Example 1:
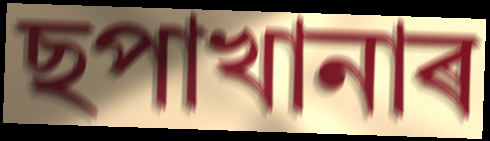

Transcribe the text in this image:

ছপাখানাৰ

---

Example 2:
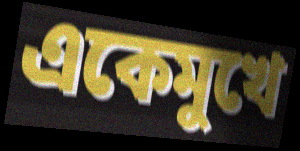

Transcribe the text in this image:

একেমুখে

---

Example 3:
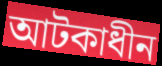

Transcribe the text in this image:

আটকাধীন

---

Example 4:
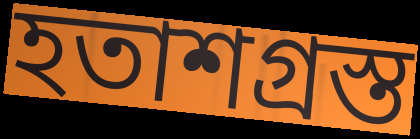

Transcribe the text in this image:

হতাশগ্ৰস্ত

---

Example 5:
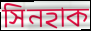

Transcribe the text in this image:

সিনহাক